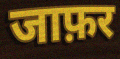
जाफ़र